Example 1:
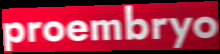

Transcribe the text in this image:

proembryo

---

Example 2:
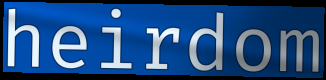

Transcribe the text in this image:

heirdom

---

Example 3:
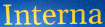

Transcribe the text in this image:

Interna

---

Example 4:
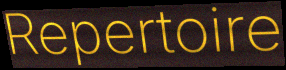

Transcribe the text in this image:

Repertoire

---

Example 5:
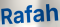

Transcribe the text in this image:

Rafah